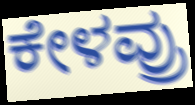
ಕೇಳವ್ರು